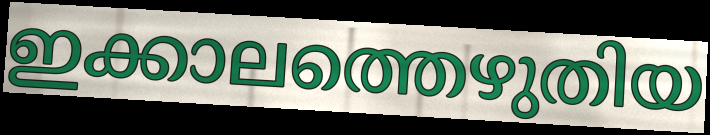
ഇക്കാലത്തെഴുതിയ